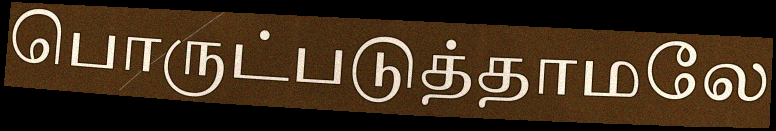
பொருட்படுத்தாமலே